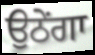
ਉਠੇਂਗਾ